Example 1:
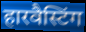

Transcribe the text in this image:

हारवैस्टिंग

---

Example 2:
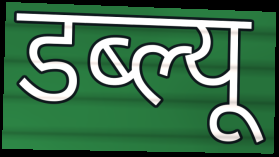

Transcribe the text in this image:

डब्ल्यू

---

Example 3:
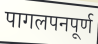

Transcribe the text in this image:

पागलपनपूर्ण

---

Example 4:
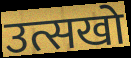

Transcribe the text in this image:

उत्सखो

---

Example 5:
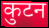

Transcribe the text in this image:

कुटन